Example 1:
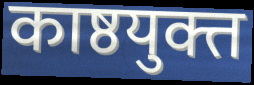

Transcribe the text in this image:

काष्ठयुक्त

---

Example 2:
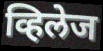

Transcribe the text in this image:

व्हिलेज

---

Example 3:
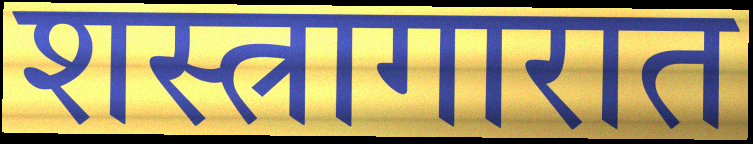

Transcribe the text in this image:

शस्त्रागारात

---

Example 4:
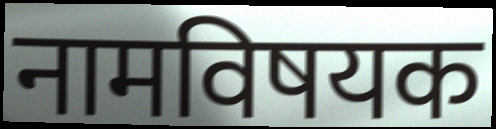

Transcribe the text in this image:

नामविषयक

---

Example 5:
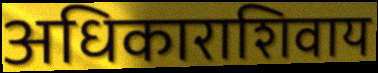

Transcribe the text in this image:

अधिकाराशिवाय